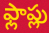
ఫ్లాప్లు